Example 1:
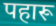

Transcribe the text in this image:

पहारू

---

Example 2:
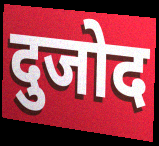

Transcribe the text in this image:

दुजोद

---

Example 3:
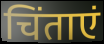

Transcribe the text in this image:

चिंताएं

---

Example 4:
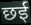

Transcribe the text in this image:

छई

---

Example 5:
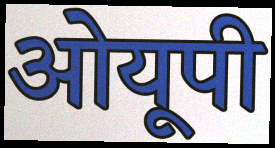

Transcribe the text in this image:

ओयूपी